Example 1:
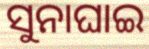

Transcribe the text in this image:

ସୁନାଘାଇ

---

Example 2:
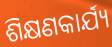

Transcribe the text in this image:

ଶିକ୍ଷଣକାର୍ଯ୍ୟ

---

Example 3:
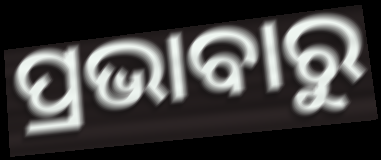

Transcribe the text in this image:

ପ୍ରଭାବାରୁ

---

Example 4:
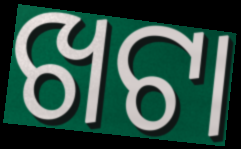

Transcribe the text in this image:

ଖଟା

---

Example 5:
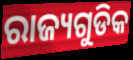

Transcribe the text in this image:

ରାଜ୍ୟଗୁଡିକ